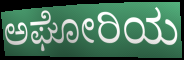
ಅಘೋರಿಯ